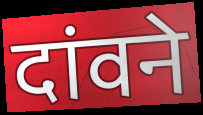
दांवने